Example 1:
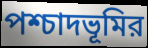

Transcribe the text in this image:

পশ্চাদভূমির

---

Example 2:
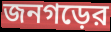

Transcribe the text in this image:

জনগড়ের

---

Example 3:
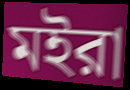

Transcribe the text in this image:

মইরা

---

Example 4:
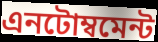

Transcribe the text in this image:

এনটোম্বমেন্ট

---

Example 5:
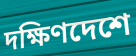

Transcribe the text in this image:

দক্ষিণদেশে